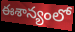
ఈశాన్యంలో